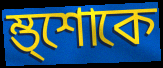
ম্ত্শোকে